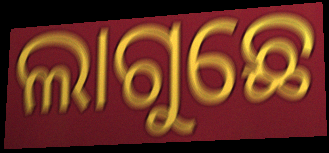
ଲାଗୁଛେ